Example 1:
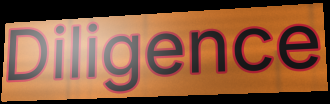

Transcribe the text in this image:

Diligence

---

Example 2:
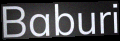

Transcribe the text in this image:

Baburi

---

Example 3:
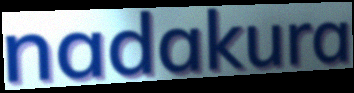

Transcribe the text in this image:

nadakura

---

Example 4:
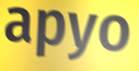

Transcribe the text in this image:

apyo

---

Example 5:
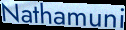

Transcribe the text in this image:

Nathamuni